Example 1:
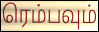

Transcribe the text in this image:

ரெம்பவும்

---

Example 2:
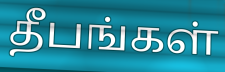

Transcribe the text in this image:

தீபங்கள்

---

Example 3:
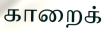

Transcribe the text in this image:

காறைக்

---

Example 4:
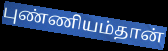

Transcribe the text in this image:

புண்ணியம்தான்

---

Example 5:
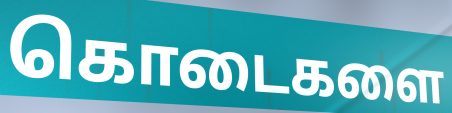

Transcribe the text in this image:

கொடைகளை